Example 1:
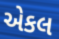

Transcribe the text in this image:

એકલ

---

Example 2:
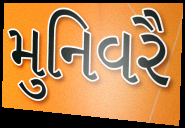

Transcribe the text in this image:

મુનિવરૈ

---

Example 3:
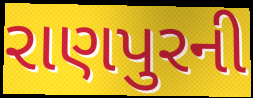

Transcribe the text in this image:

રાણપુરની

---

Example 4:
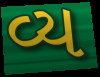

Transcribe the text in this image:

વ્ય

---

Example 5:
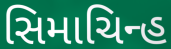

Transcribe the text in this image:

સિમાચિન્હ